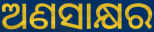
ଅଣସାକ୍ଷର